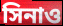
সিনাও